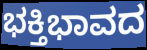
ಭಕ್ತಿಭಾವದ